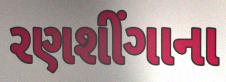
રણશીંગાના